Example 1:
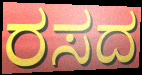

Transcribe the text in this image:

ರಸದ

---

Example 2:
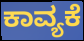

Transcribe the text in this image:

ಕಾವ್ಯಕೆ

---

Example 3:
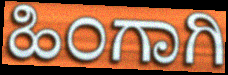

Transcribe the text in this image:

ಹಿಂಗಾಗಿ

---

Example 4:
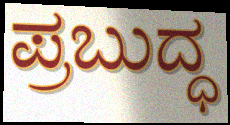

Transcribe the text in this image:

ಪ್ರಬುದ್ಧ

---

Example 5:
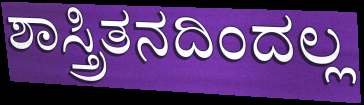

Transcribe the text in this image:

ಶಾಸ್ತ್ರಿತನದಿಂದಲ್ಲ